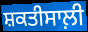
ਸ਼ਕਤੀਸਾਲ਼ੀ